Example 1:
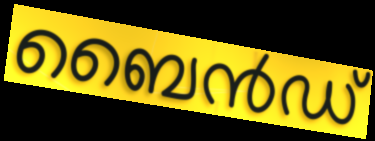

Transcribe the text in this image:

ബൈൻഡ്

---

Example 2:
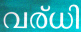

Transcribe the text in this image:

വര്ധി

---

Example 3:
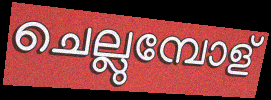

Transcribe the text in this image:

ചെല്ലുമ്പോള്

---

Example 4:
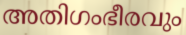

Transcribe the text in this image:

അതിഗംഭീരവും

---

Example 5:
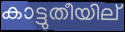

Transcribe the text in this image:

കാട്ടുതീയില്